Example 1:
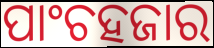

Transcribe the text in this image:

ପାଂଚହଜାର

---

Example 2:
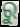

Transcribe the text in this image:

ରୁ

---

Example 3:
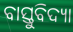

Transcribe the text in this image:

ବାସ୍ତୁବିଦ୍ୟା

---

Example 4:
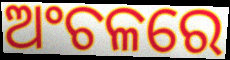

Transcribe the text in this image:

ଅଂଚଳରେ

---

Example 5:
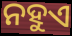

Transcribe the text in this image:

ନହୁଏ